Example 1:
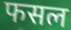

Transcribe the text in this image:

फसल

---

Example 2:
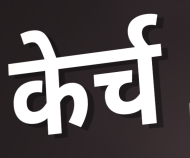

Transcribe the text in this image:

केर्च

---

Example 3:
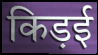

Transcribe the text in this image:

किड़ई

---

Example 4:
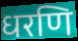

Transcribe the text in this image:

धरणि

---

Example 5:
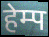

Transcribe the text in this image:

हेम्प